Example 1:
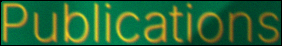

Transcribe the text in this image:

Publications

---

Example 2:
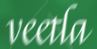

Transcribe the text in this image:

veetla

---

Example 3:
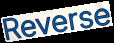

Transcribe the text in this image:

Reverse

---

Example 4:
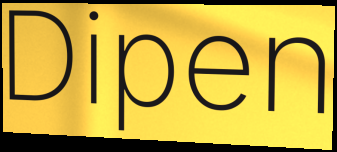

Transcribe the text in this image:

Dipen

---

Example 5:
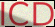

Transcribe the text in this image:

ICD